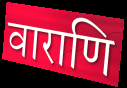
वाराणि